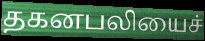
தகனபலியைச்